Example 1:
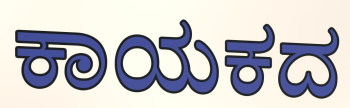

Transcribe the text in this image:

ಕಾಯಕದ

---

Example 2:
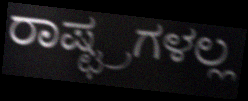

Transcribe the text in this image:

ರಾಷ್ಟ್ರಗಳಲ್ಲ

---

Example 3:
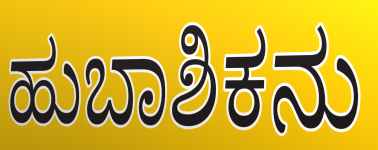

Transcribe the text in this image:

ಹುಬಾಶಿಕನು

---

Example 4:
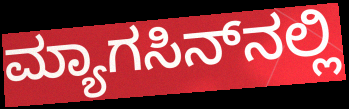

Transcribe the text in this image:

ಮ್ಯಾಗಸಿನ್‍ನಲ್ಲಿ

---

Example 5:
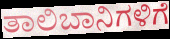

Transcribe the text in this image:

ತಾಲಿಬಾನಿಗಳಿಗೆ